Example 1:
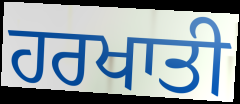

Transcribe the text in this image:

ਹਰਖਾਤੀ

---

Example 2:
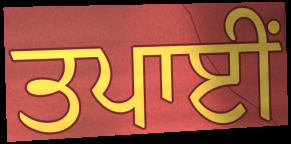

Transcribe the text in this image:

ਤਪਾਈਂ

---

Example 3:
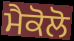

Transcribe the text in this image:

ਮੈਕੋਲੋ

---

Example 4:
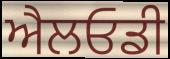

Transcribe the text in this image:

ਐਲਓਡੀ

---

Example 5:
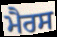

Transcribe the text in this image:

ਮੈਰਸ